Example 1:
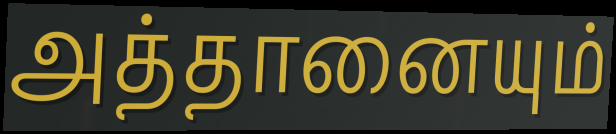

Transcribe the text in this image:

அத்தானையும்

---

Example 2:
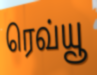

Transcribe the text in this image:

ரெவ்யூ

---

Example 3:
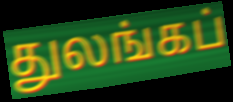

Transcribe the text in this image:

துலங்கப்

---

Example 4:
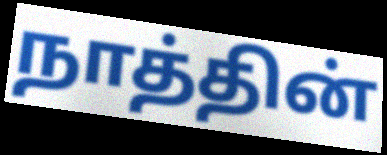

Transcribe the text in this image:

நாத்தின்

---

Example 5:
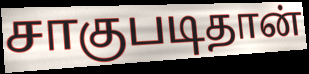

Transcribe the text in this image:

சாகுபடிதான்